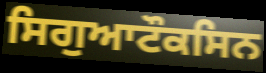
ਸਿਗੁਆਟੌਕਸਿਨ